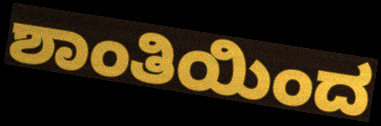
ಶಾಂತಿಯಿಂದ